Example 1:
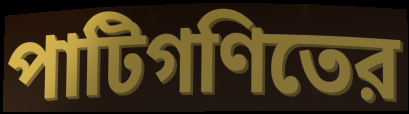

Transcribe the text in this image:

পাটিগণিতের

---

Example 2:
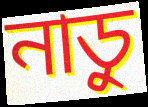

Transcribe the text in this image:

নাডু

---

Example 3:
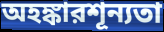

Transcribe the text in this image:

অহঙ্কারশূন্যতা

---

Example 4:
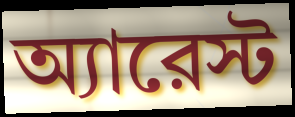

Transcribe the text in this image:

অ্যারেস্ট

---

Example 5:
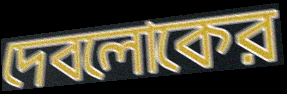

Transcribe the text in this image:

দেবলোকের